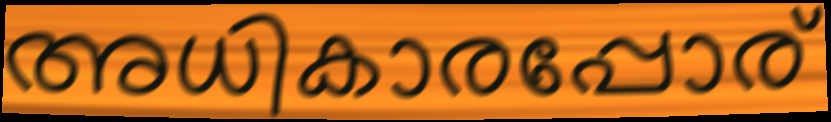
അധികാരപ്പോര്